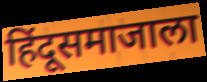
हिंदूसमाजाला